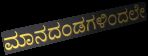
ಮಾನದಂಡಗಳಿಂದಲೇ